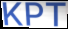
KPT